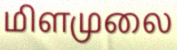
மிளமுலை